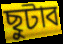
ছুটাব